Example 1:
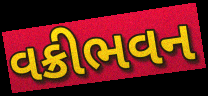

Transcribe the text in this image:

વક્રીભવન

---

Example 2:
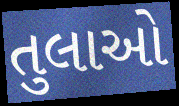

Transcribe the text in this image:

તુલાઓ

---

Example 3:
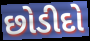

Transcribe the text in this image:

છોડીદો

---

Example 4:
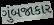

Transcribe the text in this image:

ગુંબજાકાર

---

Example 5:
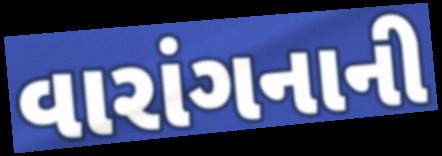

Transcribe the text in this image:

વારાંગનાની